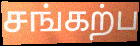
சங்கற்ப